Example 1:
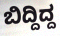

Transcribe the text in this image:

ಬಿದ್ದಿದ್ದ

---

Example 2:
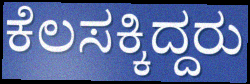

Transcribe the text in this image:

ಕೆಲಸಕ್ಕಿದ್ದರು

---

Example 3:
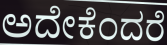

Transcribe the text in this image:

ಅದೇಕೆಂದರೆ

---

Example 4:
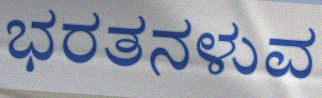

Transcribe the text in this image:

ಭರತನಳುವ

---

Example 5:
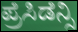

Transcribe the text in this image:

ಪ್ರೆಸಿಡೆನ್ಸಿ